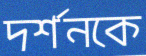
দর্শনকে